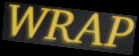
WRAP